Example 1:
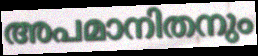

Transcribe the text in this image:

അപമാനിതനും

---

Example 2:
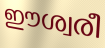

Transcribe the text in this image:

ഈശ്വരീ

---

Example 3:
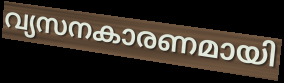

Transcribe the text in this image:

വ്യസനകാരണമായി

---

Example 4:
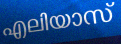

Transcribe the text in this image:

എലിയാസ്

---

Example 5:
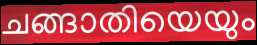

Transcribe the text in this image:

ചങ്ങാതിയെയും